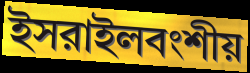
ইসরাইলবংশীয়